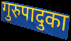
गुरुपादुका